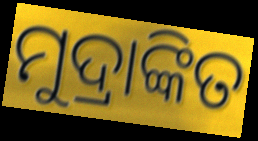
ମୁଦ୍ରାଙ୍କିତ